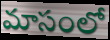
మాసంలో